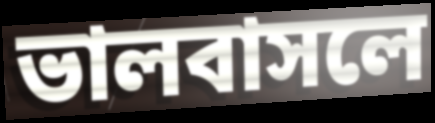
ভালবাসলে